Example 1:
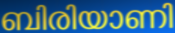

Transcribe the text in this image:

ബിരിയാണി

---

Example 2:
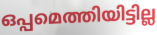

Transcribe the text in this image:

ഒപ്പമെത്തിയിട്ടില്ല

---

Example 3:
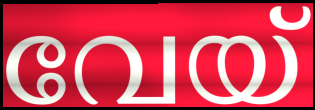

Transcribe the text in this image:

വേയ്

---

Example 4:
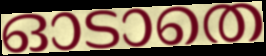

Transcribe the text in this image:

ഓടാതെ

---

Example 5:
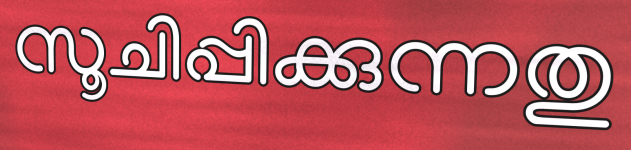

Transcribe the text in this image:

സൂചിപ്പിക്കുന്നതു